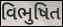
વિભુષિત